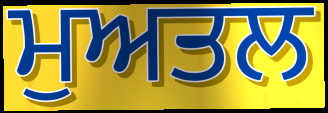
ਮੁਅਤਲ